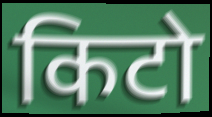
किटो